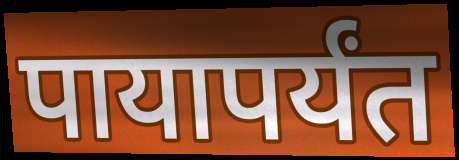
पायापर्यंत